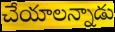
చేయాలన్నాడు